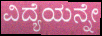
ವಿದ್ಯೆಯನ್ನೇ